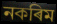
নকৰিম